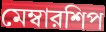
মেম্বারশিপ